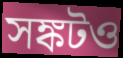
সঙ্কটও